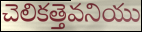
చెలికత్తెవనియు